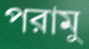
পরামু